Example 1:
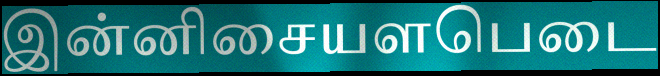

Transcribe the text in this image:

இன்னிசையளபெடை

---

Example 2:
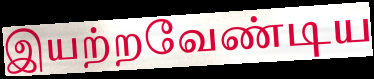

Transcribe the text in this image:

இயற்றவேண்டிய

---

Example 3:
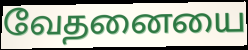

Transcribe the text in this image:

வேதனையை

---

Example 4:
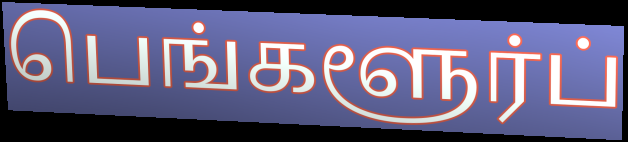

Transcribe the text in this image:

பெங்களூர்ப்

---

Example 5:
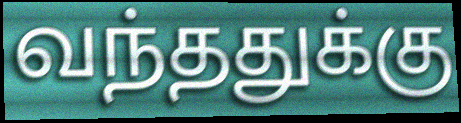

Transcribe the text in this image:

வந்ததுக்கு